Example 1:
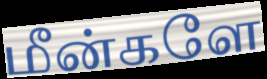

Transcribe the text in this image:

மீன்களே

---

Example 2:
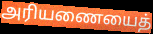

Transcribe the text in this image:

அரியணையைத்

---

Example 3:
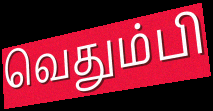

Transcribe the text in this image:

வெதும்பி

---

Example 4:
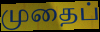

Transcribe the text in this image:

முதைப்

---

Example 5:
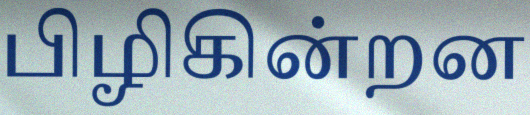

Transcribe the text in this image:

பிழிகின்றன